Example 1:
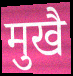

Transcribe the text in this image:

मुखै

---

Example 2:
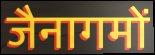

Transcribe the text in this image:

जैनागमों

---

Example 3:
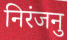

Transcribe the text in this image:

निरंजनु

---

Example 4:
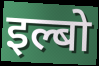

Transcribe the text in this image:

इल्बो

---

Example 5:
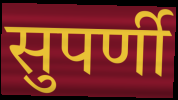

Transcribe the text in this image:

सुपर्णी